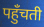
पहुँचती